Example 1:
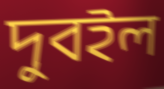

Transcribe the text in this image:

দুবইল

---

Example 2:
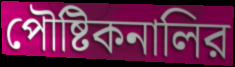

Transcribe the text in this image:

পৌষ্টিকনালির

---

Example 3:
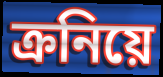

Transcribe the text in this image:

ক্রনিয়ে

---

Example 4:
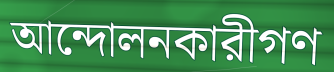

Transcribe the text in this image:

আন্দোলনকারীগণ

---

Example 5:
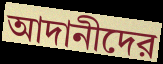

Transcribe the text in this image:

আদানীদের